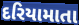
દરિયામાતા